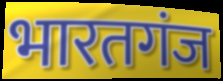
भारतगंज